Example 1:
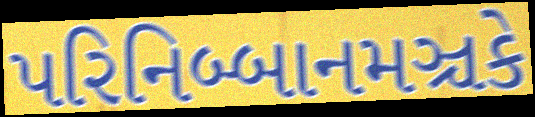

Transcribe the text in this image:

પરિનિબ્બાનમઞ્ચકે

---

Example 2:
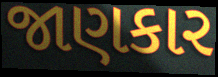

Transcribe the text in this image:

જાણકાર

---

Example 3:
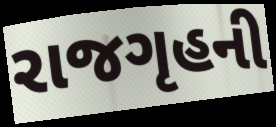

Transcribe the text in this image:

રાજગૃહની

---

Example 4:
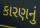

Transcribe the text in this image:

કારણનું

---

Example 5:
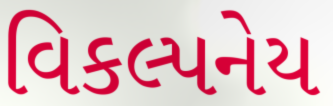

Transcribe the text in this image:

વિકલ્પનેય